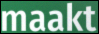
maakt